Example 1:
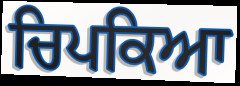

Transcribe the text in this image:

ਚਿਪਕਿਆ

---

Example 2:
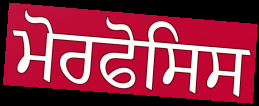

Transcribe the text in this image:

ਮੋਰਫੋਸਿਸ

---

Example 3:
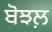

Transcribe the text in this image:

ਬੋਝਲ਼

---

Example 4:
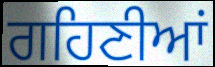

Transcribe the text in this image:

ਗਹਿਣੀਆਂ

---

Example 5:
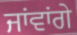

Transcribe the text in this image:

ਜਾਂਵਾਂਗੇ